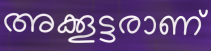
അക്കൂട്ടരാണ്